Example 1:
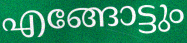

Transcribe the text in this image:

എങ്ങോട്ടും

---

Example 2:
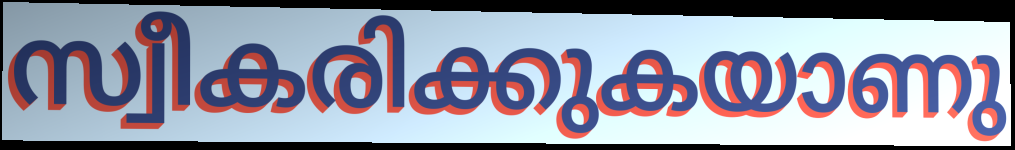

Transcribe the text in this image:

സ്വീകരിക്കുകയാണു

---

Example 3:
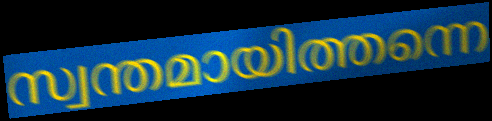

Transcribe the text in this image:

സ്വന്തമായിത്തന്നെ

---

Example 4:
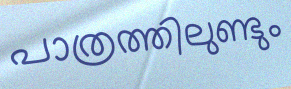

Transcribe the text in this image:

പാത്രത്തിലുണ്ടും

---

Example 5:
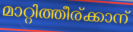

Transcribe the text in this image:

മാറ്റിത്തീര്ക്കാന്